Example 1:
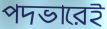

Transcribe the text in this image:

পদভারেই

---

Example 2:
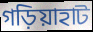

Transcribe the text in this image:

গড়িয়াহাট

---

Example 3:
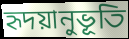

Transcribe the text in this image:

হৃদয়ানুভূতি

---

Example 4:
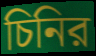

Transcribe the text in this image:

চিনির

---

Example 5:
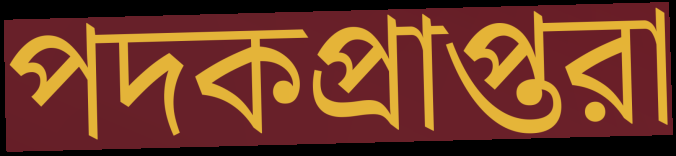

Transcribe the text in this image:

পদকপ্রাপ্তরা